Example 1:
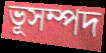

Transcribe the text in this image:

ভূসম্পদ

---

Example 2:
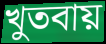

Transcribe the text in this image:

খুতবায়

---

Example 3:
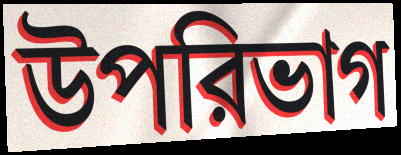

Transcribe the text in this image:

উপরিভাগ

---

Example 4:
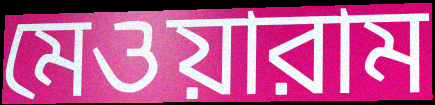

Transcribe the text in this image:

মেওয়ারাম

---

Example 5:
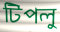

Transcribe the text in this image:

টিপলু